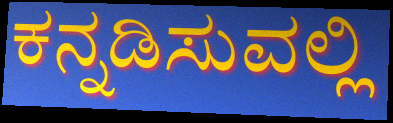
ಕನ್ನಡಿಸುವಲ್ಲಿ